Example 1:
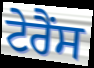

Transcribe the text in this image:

ਟੇਰੈਂਸ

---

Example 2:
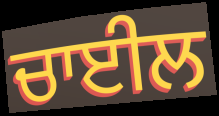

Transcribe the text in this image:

ਚਾਈਲ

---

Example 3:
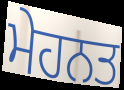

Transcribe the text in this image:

ਮੇਹਨਤ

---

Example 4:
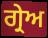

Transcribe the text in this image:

ਗ੍ਰੇਅ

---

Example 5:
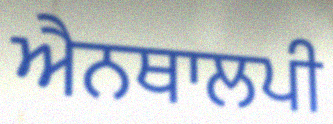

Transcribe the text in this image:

ਐਨਥਾਲਪੀ